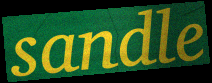
sandle